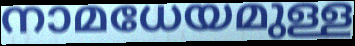
നാമധേയമുള്ള